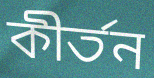
কীর্তন